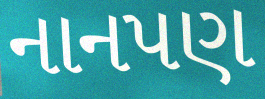
નાનપણ